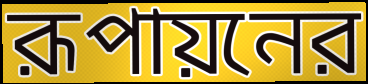
রূপায়নের